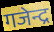
गजेन्‍द्र